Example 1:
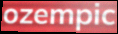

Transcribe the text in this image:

ozempic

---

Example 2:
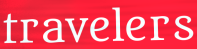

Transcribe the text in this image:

travelers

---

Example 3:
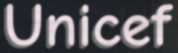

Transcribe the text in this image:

Unicef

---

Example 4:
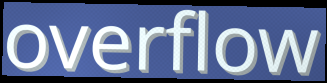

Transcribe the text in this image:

overflow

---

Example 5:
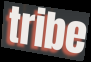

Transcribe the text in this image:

tribe